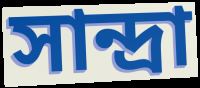
সান্দ্রা